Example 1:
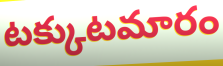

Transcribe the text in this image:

టక్కుటమారం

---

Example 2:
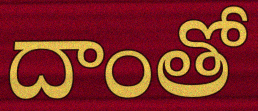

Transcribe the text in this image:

దాంతో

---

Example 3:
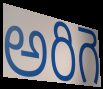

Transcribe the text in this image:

అరిగె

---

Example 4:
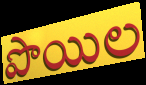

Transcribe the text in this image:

పొయిల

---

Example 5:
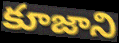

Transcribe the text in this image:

కూజాని